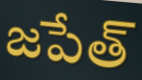
జపేత్